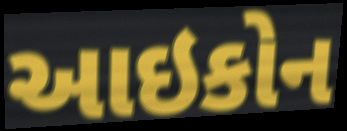
આઇકોન